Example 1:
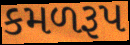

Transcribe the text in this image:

કમળરૂપ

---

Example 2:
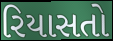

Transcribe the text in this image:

રિયાસતો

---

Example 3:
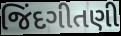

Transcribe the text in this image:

જિંદગીતણી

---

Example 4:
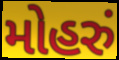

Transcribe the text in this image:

મોહરું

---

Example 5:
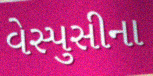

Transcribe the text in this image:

વેસ્પુસીના